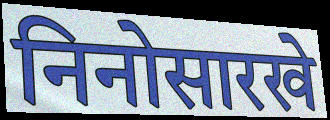
निनोसारखे